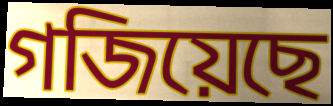
গজিয়েছে